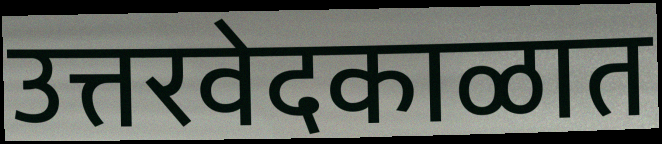
उत्तरवेदकाळात